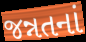
જન્નતનાં